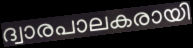
ദ്വാരപാലകരായി